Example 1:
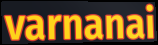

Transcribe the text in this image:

varnanai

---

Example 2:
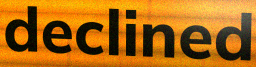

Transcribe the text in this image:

declined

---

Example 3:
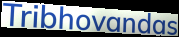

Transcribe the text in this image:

Tribhovandas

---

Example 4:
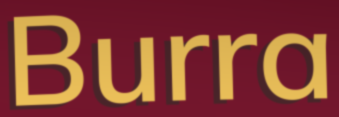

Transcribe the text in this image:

Burra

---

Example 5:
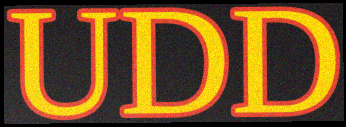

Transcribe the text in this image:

UDD